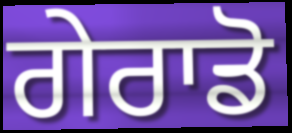
ਗੇਰਾਡੋ